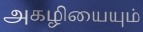
அகழியையும்